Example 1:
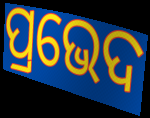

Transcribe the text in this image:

ପ୍ରଭେଦ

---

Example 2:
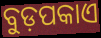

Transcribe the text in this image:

ବୁଡ଼ପକାଏ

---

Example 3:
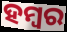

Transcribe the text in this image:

ହମ୍ବର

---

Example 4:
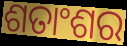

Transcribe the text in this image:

ଶତାଂଶର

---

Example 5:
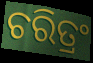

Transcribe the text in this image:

ଚରିତ୍ରଂ